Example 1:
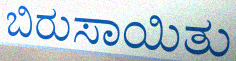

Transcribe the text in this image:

ಬಿರುಸಾಯಿತು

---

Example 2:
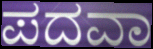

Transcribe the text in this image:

ಪದವಾ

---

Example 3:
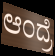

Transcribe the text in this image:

ಆಂದ್ರೆ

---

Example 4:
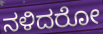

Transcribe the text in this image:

ನಳಿದರೋ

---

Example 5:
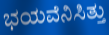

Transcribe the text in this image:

ಭಯವೆನಿಸಿತ್ತು